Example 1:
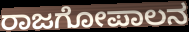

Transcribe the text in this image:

ರಾಜಗೋಪಾಲನ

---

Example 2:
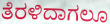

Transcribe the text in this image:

ತೆರಳಿದಾಗಲೂ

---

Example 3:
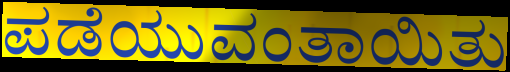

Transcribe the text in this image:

ಪಡೆಯುವಂತಾಯಿತು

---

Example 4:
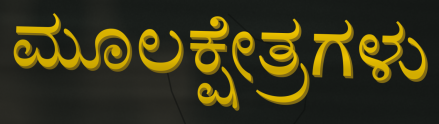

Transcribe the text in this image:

ಮೂಲಕ್ಷೇತ್ರಗಳು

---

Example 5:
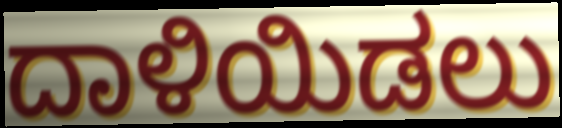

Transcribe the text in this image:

ದಾಳಿಯಿಡಲು